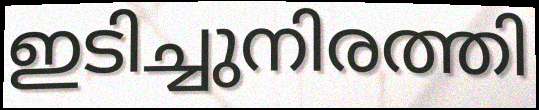
ഇടിച്ചുനിരത്തി